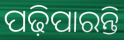
ପଢ଼ିପାରନ୍ତି